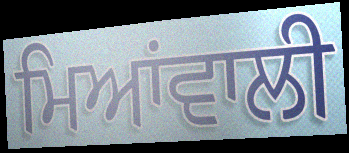
ਮਿਆਂਵਾਲੀ